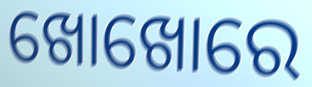
ଖୋଖୋରେ